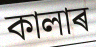
কালাৰ